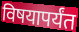
विषयापर्यंत